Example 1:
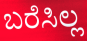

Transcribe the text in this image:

ಬರೆಸಿಲ್ಲ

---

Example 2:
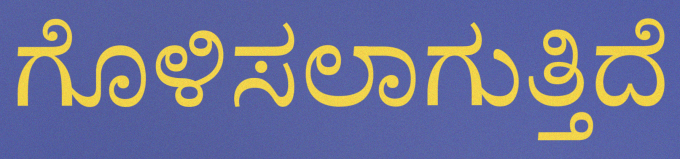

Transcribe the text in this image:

ಗೊಳಿಸಲಾಗುತ್ತಿದೆ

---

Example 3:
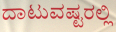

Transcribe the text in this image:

ದಾಟುವಷ್ಟರಲ್ಲಿ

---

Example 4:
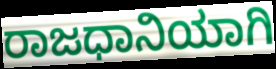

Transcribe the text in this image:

ರಾಜಧಾನಿಯಾಗಿ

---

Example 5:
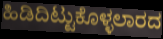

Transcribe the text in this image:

ಹಿಡಿದಿಟ್ಟುಕೊಳ್ಳಲಾರದ